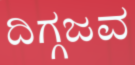
ದಿಗ್ಗಜವ